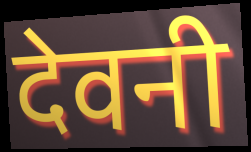
देवनी